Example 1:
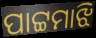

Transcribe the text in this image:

ପାଟ୍ଟମାଝି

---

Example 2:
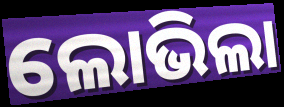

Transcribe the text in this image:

ଲୋଭିଲା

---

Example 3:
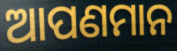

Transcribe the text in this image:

ଆପଣମାନ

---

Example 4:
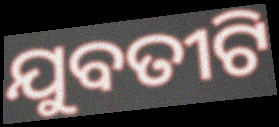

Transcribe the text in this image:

ଯୁବତୀଟି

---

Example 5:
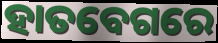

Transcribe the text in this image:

ହାତବେଗରେ